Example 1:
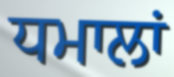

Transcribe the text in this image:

ਧਮਾਲਾਂ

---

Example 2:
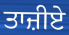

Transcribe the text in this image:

ਤਾਜ਼ੀਏ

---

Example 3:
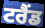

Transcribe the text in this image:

ਟਰੈਂਡ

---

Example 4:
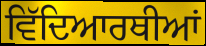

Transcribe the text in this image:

ਵਿੱਦਿਆਰਥੀਆਂ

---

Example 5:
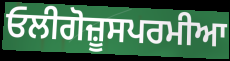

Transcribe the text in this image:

ਓਲੀਗੋਜ਼ੂਸਪਰਮੀਆ